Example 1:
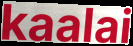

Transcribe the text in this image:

kaalai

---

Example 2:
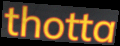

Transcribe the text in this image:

thotta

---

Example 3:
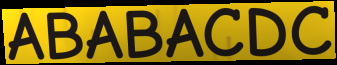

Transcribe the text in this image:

ABABACDC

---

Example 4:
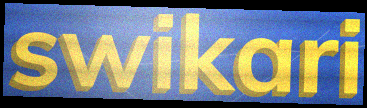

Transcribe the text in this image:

swikari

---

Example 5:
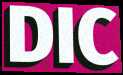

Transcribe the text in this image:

DIC